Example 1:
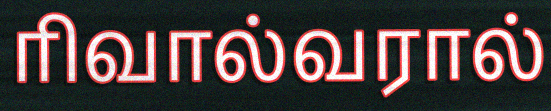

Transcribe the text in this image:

ரிவால்வரால்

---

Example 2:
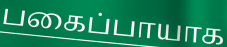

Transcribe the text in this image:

பகைப்பாயாக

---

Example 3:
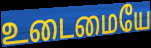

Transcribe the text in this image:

உடைமையே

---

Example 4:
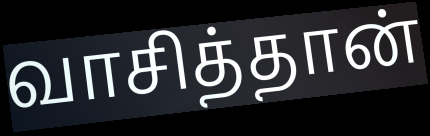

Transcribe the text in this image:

வாசித்தான்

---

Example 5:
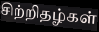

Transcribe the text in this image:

சிற்றிதழ்கள்